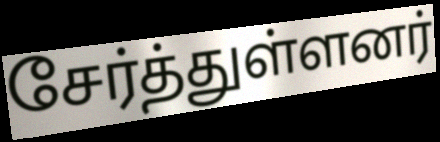
சேர்த்துள்ளனர்